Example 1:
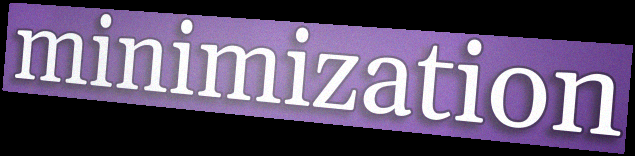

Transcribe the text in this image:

minimization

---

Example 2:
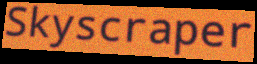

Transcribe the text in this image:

Skyscraper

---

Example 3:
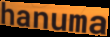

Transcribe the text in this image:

hanuma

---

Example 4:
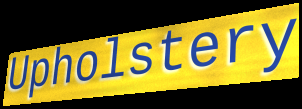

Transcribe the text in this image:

Upholstery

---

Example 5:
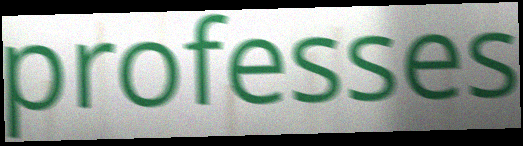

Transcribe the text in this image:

professes